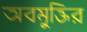
অবমুক্তির